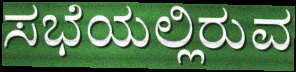
ಸಭೆಯಲ್ಲಿರುವ